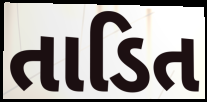
તાડિત